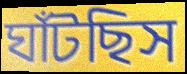
ঘাঁটছিস